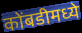
कोंबडीमध्ये